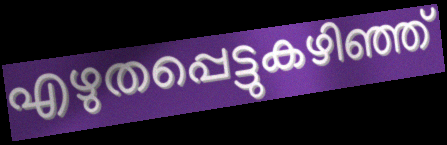
എഴുതപ്പെട്ടുകഴിഞ്ഞ്